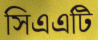
সিএএটি